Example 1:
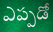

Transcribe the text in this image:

ఎప్పడో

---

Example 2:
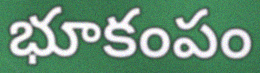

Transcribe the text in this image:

భూకంపం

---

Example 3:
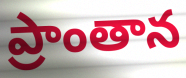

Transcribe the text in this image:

ప్రాంతాన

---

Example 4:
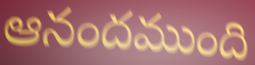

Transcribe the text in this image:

ఆనందముంది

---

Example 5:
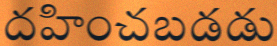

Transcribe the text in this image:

దహించబడడు